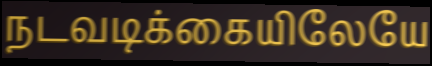
நடவடிக்கையிலேயே